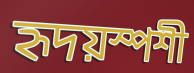
হৃদয়স্পশী